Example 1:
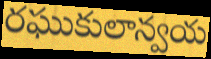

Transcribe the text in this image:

రఘుకులాన్వయ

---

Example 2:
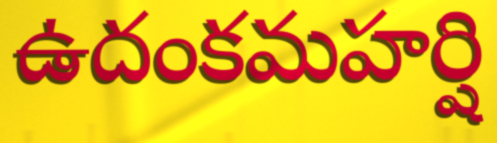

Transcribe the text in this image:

ఉదంకమహర్షి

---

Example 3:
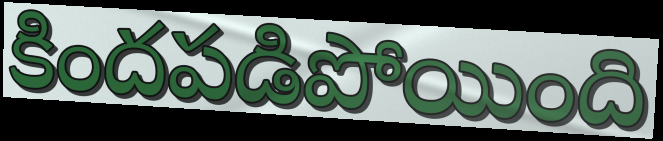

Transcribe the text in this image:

కిందపడిపోయింది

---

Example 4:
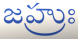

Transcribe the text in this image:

జహ్రుః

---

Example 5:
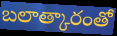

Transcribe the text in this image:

బలాత్కారంతో